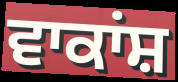
ਵਾਕਾਂਸ਼